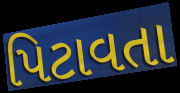
પિટાવતા